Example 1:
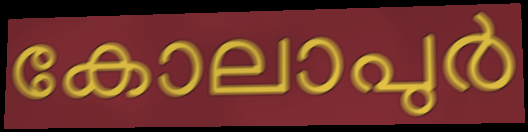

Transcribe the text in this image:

കോലാപുർ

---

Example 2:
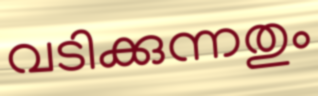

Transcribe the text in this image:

വടിക്കുന്നതും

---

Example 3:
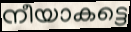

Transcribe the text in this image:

നീയാകട്ടെ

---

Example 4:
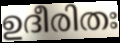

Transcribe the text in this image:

ഉദീരിതഃ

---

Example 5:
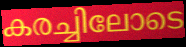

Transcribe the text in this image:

കരച്ചിലോടെ